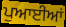
ਪੁਆਈਆਂ